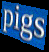
pigs